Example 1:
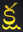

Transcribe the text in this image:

క్ష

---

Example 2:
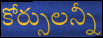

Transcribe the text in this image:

కోర్సులన్నీ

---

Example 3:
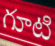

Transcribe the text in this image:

గూటి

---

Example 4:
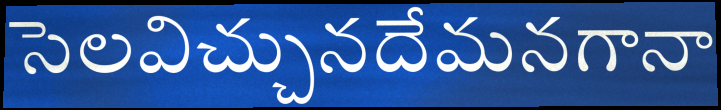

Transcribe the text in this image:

సెలవిచ్చునదేమనగానా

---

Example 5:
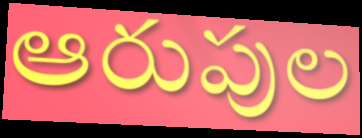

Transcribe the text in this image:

ఆరుపుల